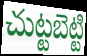
చుట్టబెట్టి